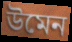
উমেন